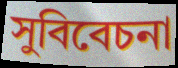
সুবিবেচনা